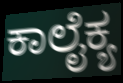
ಕಾಲೈಕ್ಯ